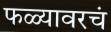
फळ्यावरचं